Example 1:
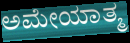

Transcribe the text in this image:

ಅಮೇಯಾತ್ಮ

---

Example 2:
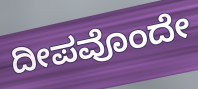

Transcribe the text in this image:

ದೀಪವೊಂದೇ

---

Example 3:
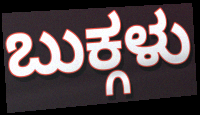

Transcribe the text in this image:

ಬುಕ್ಗಳು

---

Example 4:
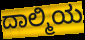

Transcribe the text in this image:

ದಾಲ್ಮಿಯ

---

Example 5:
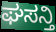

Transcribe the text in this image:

ಘಸನ್ತಿ